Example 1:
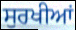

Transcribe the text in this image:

ਸੁਰਖੀਆਂ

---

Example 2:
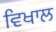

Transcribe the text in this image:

ਵਿਖਾਲ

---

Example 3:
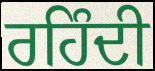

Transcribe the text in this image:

ਰਹਿੰਦੀ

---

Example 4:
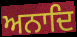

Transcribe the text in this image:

ਅਨਾਦਿ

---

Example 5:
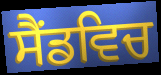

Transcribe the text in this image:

ਸੈਂਡਵਿਚ